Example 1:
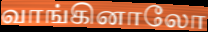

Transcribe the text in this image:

வாங்கினாலோ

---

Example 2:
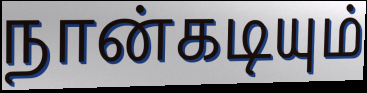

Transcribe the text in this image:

நான்கடியும்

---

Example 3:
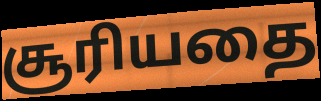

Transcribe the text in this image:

சூரியதை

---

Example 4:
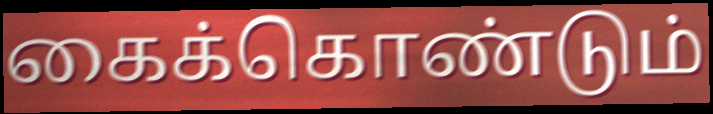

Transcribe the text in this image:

கைக்கொண்டும்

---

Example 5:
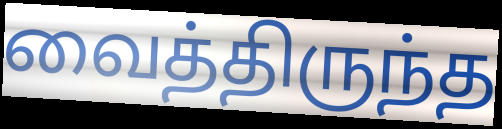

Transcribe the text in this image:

வைத்திருந்த